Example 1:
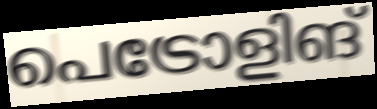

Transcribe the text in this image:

പെട്രോളിങ്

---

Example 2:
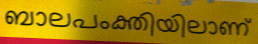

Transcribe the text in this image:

ബാലപംക്തിയിലാണ്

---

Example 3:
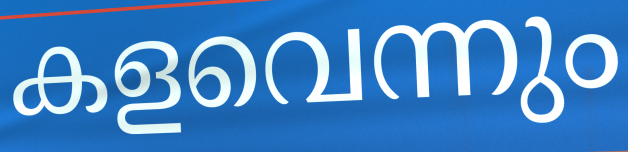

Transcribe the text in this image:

കളവെന്നും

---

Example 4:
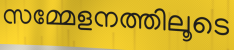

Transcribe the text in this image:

സമ്മേളനത്തിലൂടെ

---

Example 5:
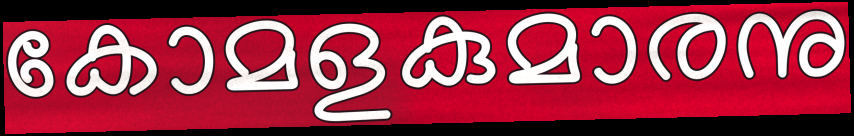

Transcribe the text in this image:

കോമളകുമാരനു